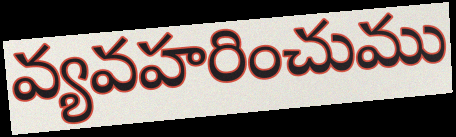
వ్యవహరించుము